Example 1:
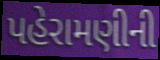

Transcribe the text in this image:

પહેરામણીની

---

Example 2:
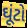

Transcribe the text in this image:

ઘૂંટો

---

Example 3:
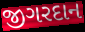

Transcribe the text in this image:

જીગરદાન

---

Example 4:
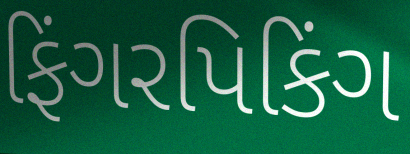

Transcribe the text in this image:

ફિંગરપિકિંગ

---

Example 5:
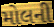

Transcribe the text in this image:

મોલની